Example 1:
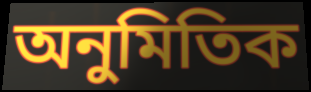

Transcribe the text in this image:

অনুমিতিক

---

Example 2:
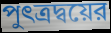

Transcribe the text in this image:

পুৎত্রদ্বয়ের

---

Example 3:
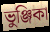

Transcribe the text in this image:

ভুঞ্জিকা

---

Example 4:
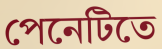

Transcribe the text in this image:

পেনেটিতে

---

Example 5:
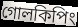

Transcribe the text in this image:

গোলকিপিং